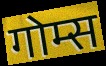
गोम्स